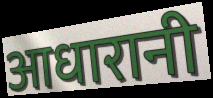
आधारानी